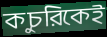
কচুরিকেই